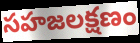
సహజలక్షణం